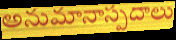
అనుమానాస్పదాలు